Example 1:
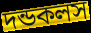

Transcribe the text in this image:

দন্ডকলস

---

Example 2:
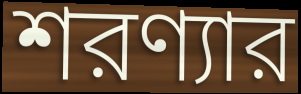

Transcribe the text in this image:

শরণ্যার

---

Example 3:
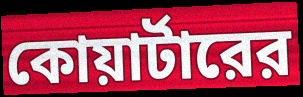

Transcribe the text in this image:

কোয়ার্টারের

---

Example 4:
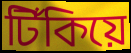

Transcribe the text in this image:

টিঁকিয়ে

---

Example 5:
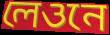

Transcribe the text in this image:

লেওনে